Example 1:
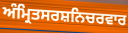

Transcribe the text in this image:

ਅੰਮ੍ਰਿਤਸਰਸ਼ਨਿਚਰਵਾਰ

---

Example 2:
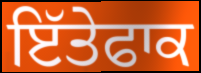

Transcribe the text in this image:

ਇੱਤੇਫਾਕ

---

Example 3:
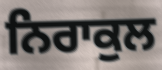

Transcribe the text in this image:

ਨਿਰਾਕੁਲ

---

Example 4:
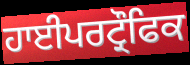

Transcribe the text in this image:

ਹਾਈਪਰਟ੍ਰੌਫਿਕ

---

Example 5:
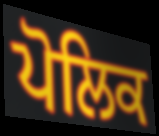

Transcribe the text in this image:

ਪੋਲਿਕ